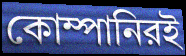
কোম্পানিরই